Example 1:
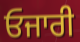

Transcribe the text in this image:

ਓਜਾਰੀ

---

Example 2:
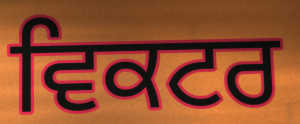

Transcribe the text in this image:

ਵਿਕਟਰ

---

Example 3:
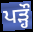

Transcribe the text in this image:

ਪੜ੍ਹੌ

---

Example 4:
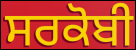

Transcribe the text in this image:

ਸਰਕੋਬੀ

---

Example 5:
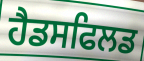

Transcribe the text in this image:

ਹੈਡਸਫਿਲਡ